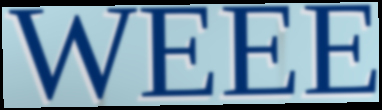
WEEE